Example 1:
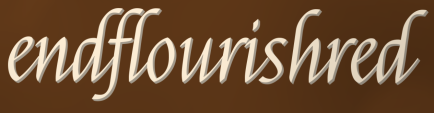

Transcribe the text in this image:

endflourishred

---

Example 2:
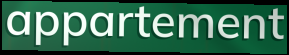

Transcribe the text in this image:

appartement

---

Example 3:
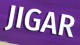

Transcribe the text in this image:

JIGAR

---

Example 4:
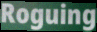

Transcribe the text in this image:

Roguing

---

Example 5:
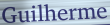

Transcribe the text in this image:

Guilherme